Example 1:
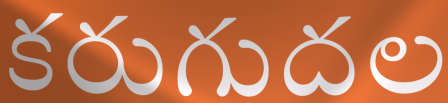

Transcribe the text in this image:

కరుగుదల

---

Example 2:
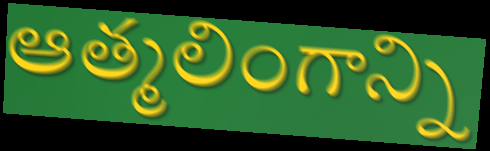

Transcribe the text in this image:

ఆత్మలింగాన్ని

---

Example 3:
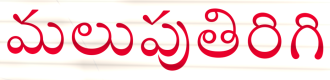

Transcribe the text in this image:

మలుపుతిరిగి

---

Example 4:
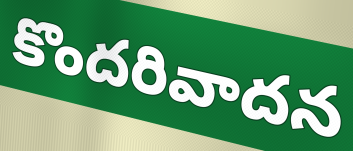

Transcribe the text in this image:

కొందరివాదన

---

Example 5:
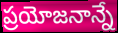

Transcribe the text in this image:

ప్రయోజనాన్నే